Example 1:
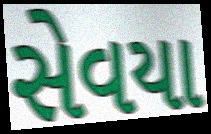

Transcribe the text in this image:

સેવયા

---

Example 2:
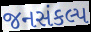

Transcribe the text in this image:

જનસંકલ્પ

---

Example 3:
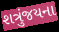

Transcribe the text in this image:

શત્રુંજયના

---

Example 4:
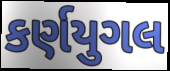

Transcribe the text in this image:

કર્ણયુગલ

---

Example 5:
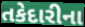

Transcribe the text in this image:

તકેદારીના